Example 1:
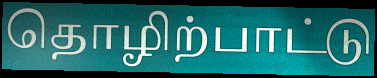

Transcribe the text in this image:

தொழிற்பாட்டு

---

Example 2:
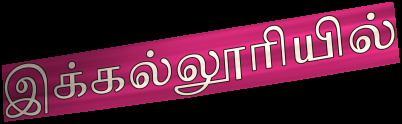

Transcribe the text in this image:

இக்கல்லூரியில்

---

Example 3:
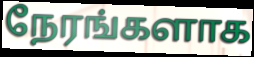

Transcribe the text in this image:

நேரங்களாக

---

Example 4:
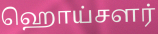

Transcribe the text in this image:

ஹொய்சளர்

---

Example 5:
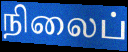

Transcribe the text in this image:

நிலைப்